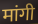
मांगी